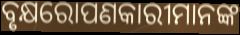
ବୃକ୍ଷରୋପଣକାରୀମାନଙ୍କ